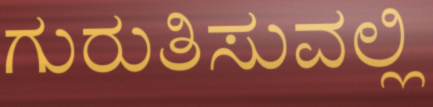
ಗುರುತಿಸುವಲ್ಲಿ